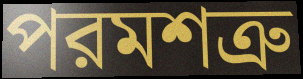
পরমশত্রু